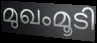
മുഖംമൂടി